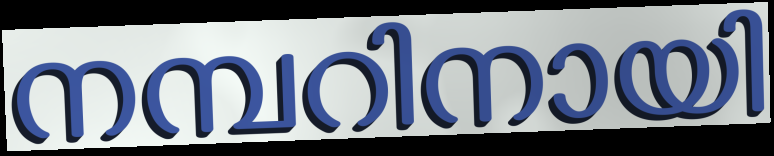
നമ്പറിനായി